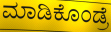
ಮಾಡಿಕೊಂಡ್ರೆ